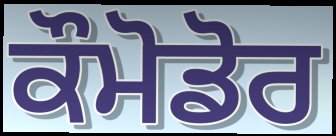
ਕੌਮੋਡੋਰ